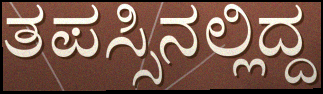
ತಪಸ್ಸಿನಲ್ಲಿದ್ದ